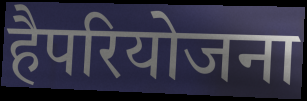
हैपरियोजना